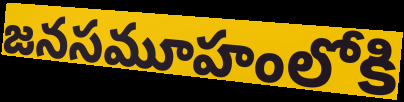
జనసమూహంలోకి